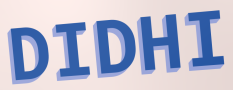
DIDHI